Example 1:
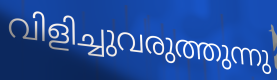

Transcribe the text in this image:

വിളിച്ചുവരുത്തുന്നു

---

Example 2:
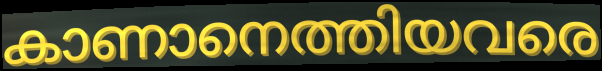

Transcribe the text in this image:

കാണാനെത്തിയവരെ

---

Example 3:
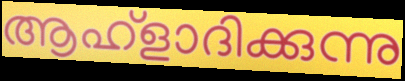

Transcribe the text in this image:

ആഹ്ളാദിക്കുന്നു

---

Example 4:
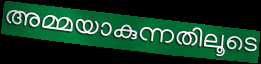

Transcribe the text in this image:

അമ്മയാകുന്നതിലൂടെ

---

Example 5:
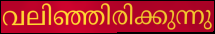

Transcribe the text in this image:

വലിഞ്ഞിരിക്കുന്നു